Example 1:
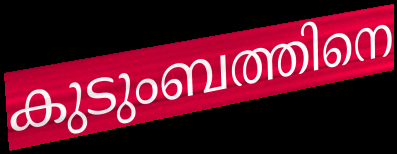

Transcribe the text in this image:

കുടുംബത്തിനെ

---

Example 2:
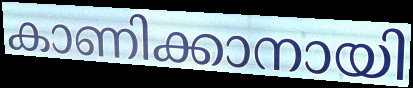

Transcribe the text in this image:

കാണിക്കാനായി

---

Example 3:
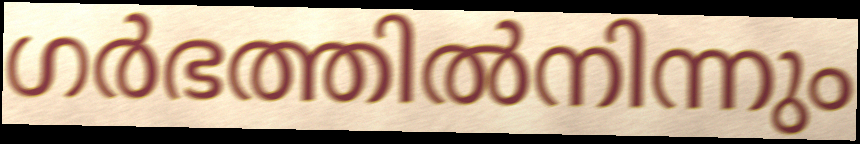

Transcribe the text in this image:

ഗർഭത്തിൽനിന്നും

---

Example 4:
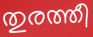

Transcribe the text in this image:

തുരത്തീ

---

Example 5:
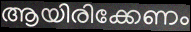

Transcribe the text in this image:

ആയിരിക്കേണം